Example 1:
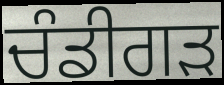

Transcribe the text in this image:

ਚੰਡੀਗੜ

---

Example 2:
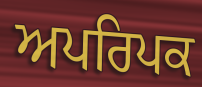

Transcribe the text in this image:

ਅਪਰਿਪਕ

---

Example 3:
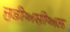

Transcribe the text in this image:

ਜੁਡੀਅਸ਼ੀਅਲ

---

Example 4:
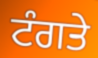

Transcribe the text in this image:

ਟੰਗਤੇ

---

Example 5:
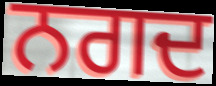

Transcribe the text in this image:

ਨਗਦ